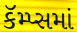
કૅમ્પ્સમાં